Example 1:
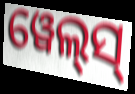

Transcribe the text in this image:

ୱେଲ୍‌ସ୍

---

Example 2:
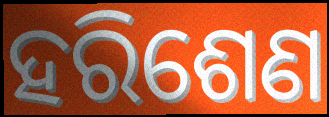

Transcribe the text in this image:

ହରିଶେଣ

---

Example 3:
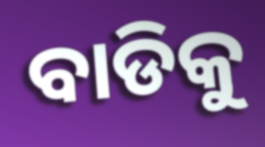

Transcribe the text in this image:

ବାଡିକୁ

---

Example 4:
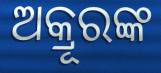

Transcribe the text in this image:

ଅକ୍ରୂରଙ୍କ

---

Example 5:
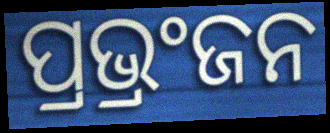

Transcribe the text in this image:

ପ୍ରଭ୍ରଂଜନ